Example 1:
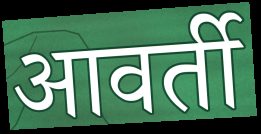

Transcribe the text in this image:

आवर्ती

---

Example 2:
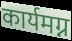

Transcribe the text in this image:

कार्यमग्न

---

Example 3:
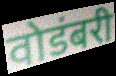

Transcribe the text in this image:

वोडंबरी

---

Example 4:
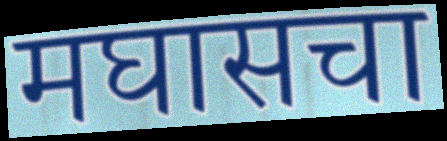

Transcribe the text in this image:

मघासचा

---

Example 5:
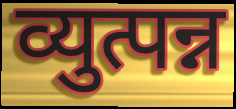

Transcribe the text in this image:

व्युत्पन्न